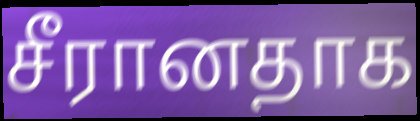
சீரானதாக